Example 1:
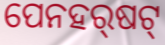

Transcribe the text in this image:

ପେନହର୍‍ଷଟ୍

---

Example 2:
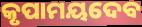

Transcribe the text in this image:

କୃପାମୟଦେବ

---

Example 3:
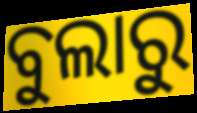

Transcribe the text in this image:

ବୁଲାରୁ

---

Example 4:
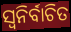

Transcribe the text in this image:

ସ୍ୱନିର୍ବାଚିତ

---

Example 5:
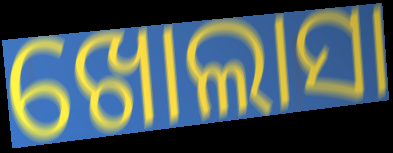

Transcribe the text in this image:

ଖୋଲାସା